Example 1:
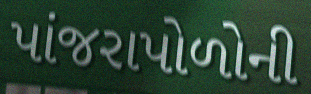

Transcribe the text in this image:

પાંજરાપોળોની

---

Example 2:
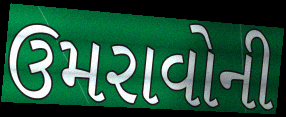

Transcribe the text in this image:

ઉમરાવોની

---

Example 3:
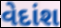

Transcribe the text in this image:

વેદાંશ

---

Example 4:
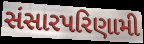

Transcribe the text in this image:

સંસારપરિણામી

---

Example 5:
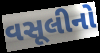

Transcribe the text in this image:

વસૂલીનો